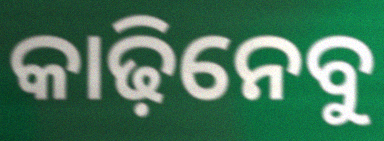
କାଢ଼ିନେବୁ